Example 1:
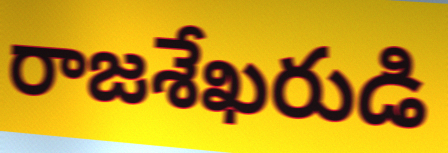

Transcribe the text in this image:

రాజశేఖరుడి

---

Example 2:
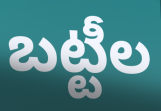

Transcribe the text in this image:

బట్టీల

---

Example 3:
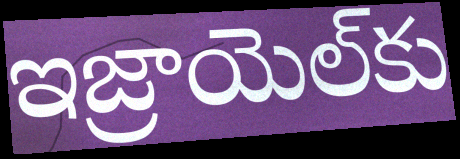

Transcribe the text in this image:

ఇజ్రాయెల్‌కు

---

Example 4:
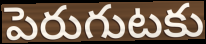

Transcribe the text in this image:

పెరుగుటకు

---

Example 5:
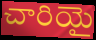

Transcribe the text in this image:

చారియై